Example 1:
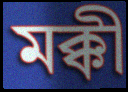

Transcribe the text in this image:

মক্কী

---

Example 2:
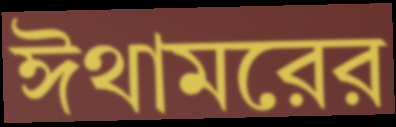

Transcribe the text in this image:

ঈথামরের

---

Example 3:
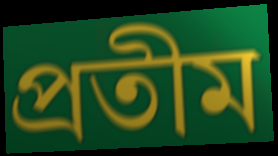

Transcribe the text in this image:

প্রতীম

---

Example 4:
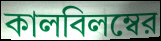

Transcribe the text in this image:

কালবিলম্বের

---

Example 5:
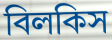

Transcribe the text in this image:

বিলকিস